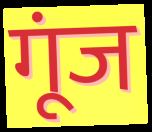
गूंज